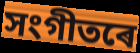
সংগীতৰে